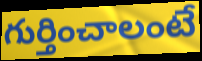
గుర్తించాలంటే